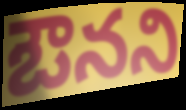
ఔనని